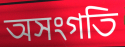
অসংগতি